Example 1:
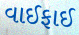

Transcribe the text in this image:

વાઈફાઈ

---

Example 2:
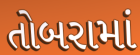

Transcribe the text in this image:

તોબરામાં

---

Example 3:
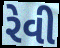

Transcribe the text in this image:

રેવી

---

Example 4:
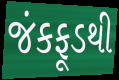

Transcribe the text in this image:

જંકફૂડથી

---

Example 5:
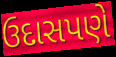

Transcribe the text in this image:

ઉદાસપણે